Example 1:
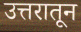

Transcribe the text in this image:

उत्तरातून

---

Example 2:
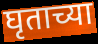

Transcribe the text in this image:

घृताच्या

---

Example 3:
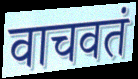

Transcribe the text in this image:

वाचवतं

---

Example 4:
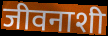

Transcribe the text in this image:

जीवनाशी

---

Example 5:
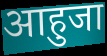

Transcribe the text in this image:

आहुजा